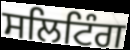
ਸਲਿਟਿੰਗ